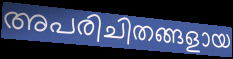
അപരിചിതങ്ങളായ